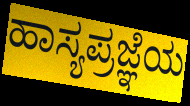
ಹಾಸ್ಯಪ್ರಜ್ಞೆಯ